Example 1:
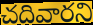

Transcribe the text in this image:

చదివారని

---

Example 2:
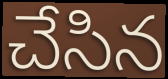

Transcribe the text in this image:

చేసిన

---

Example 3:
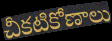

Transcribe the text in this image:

చీకటికోణాలు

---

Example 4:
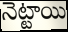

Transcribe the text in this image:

నెట్టాయి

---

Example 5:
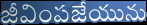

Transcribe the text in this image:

జీవింపజేయును